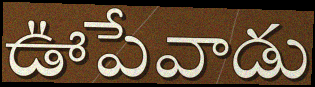
ఊపేవాడు